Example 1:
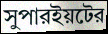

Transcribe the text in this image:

সুপারইয়টের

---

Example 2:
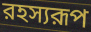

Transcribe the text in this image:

রহস্যরূপ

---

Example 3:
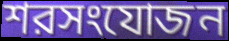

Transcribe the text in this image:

শরসংযোজন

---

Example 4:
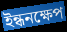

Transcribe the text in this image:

ইন্ধনক্ষেপ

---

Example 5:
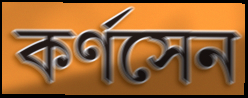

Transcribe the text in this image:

কর্ণসেন